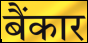
बैंकार